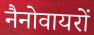
नैनोवायरों